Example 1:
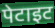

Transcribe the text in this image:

पेटाइट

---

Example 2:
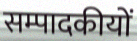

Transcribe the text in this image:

सम्पादकीयों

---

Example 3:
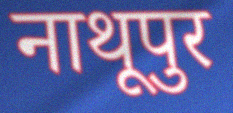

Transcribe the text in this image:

नाथूपुर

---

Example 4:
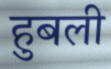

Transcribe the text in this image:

हुबली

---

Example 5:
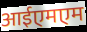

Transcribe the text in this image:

आईएमएम